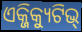
ଏକ୍ଜିକ୍ୟୁଟିଭ୍